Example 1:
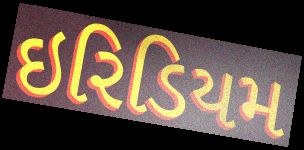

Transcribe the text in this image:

ઇરિડિયમ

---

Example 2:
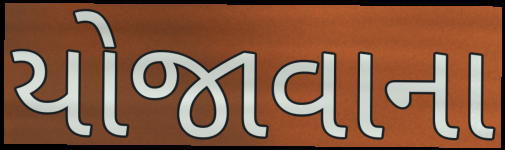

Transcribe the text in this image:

યોજાવાના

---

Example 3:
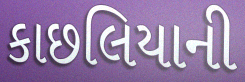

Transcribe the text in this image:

કાછલિયાની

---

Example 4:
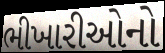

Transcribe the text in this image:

ભીખારીઓનો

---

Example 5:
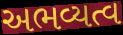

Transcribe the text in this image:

અભવ્યત્વ